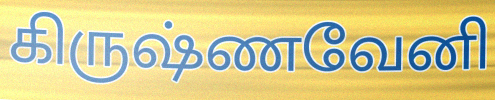
கிருஷ்ணவேனி